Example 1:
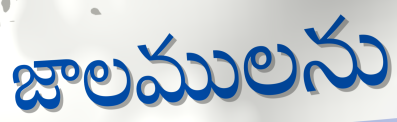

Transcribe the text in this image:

జాలములను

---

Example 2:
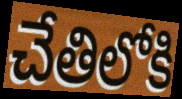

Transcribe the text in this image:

చేతిలోకి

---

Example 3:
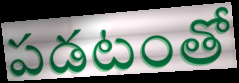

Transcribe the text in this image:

పడటంతో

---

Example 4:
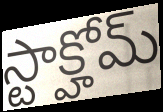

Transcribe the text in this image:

స్టాక్హోమ్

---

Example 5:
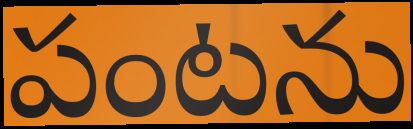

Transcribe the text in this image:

పంటను